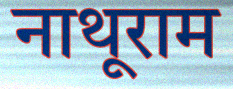
नाथूराम